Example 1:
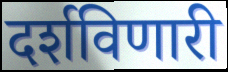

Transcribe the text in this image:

दर्शविणारी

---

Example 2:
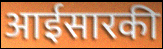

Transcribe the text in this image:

आईसारकी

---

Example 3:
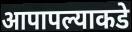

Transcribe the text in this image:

आपापल्याकडे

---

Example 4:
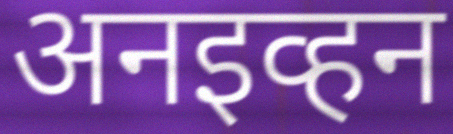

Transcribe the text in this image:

अनइव्हन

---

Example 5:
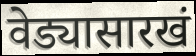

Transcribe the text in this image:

वेड्यासारखं